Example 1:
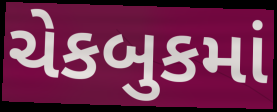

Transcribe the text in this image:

ચેકબુકમાં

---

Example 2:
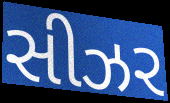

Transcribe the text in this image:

સીઝર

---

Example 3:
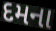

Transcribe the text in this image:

દમના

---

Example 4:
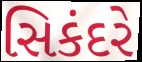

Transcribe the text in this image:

સિકંદરે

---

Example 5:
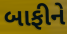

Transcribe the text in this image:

બાફીને